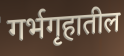
गर्भगृहातील